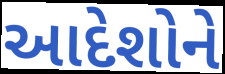
આદેશોને